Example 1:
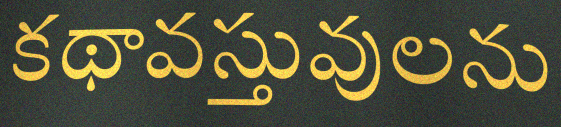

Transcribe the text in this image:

కథావస్తువులను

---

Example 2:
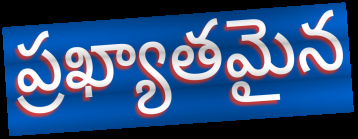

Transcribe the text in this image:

ప్రఖ్యాతమైన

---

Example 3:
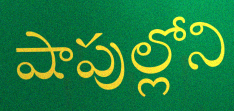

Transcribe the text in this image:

షాపుల్లోని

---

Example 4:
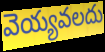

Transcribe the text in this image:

వెయ్యవలదు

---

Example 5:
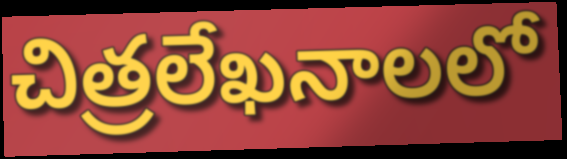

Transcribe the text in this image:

చిత్రలేఖనాలలో